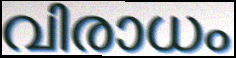
വിരാധം